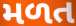
મળત